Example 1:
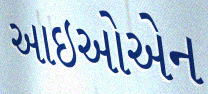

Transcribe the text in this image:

આઇઓએન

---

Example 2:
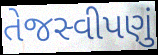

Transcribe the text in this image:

તેજસ્વીપણું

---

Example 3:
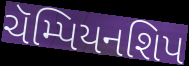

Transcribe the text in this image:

ચૅમ્પિયનશિપ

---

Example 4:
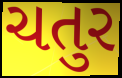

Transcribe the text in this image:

ચતુર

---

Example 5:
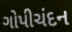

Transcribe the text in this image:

ગોપીચંદન